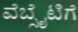
ವೆಬ್ಸೈಟಿಗೆ